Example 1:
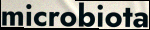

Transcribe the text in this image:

microbiota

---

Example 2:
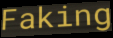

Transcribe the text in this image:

Faking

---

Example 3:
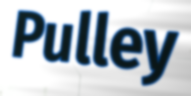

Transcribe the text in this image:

Pulley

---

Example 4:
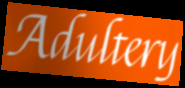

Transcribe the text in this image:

Adultery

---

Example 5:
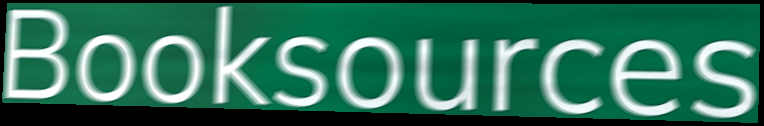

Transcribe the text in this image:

Booksources